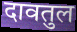
दावतुल